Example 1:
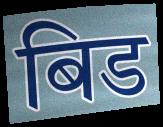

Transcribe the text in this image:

बिड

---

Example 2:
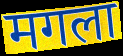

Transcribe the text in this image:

मगला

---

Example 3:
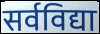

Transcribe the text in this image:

सर्वविद्या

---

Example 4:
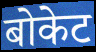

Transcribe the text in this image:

बोकेट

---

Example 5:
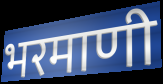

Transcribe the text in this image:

भरमाणी